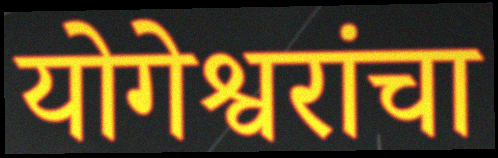
योगेश्वरांचा